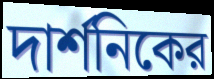
দার্শনিকের